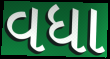
વધા